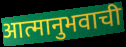
आत्मानुभवाची